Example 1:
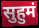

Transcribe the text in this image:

सुहुमं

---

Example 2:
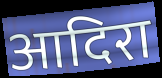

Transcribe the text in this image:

आदिरा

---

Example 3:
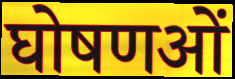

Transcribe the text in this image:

घोषणओं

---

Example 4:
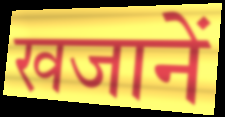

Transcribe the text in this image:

खजानें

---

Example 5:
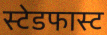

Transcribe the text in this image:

स्टेडफास्ट